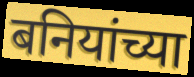
बनियांच्या